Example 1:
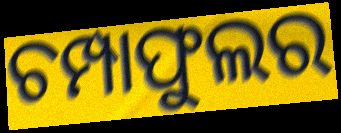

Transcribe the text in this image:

ଚମ୍ପାଫୁଲର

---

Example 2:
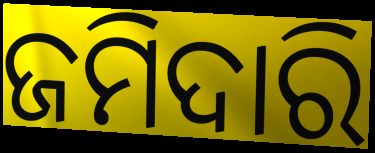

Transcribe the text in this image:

ଜମିଦାରି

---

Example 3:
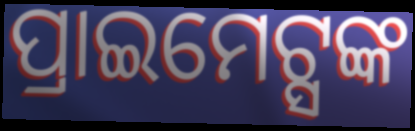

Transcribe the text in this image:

ପ୍ରାଇମେଟ୍ସଙ୍କ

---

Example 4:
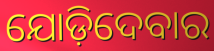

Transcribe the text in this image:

ଯୋଡ଼ିଦେବାର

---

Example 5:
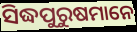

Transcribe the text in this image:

ସିଦ୍ଧପୁରୁଷମାନେ